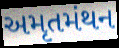
અમૃતમંથન